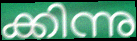
ക്കിന്നു